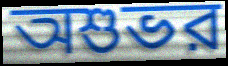
অশুভর